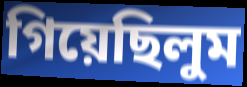
গিয়েছিলুম